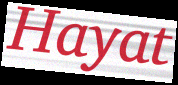
Hayat